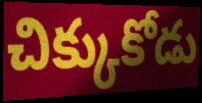
చిక్కుకోడు